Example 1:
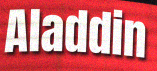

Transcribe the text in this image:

Aladdin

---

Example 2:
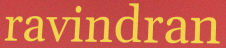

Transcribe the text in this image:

ravindran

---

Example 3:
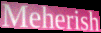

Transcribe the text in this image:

Meherish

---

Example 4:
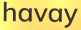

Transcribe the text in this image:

havay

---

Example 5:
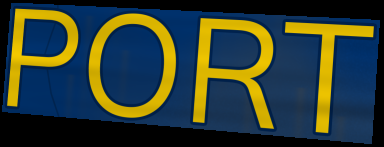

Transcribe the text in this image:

PORT